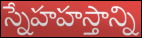
స్నేహహస్తాన్ని